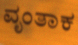
ವೃಂತಾಕ